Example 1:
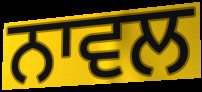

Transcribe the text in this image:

ਨਾਵਲ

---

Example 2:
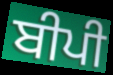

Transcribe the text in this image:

ਬੀਪੀ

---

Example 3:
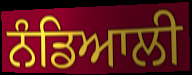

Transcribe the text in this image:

ਨੰਡਿਆਲੀ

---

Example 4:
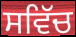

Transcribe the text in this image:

ਸਵਿੱਚ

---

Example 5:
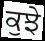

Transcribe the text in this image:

ਕੁਝੇ